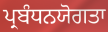
ਪ੍ਰਬੰਧਨਯੋਗਤਾ